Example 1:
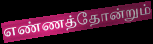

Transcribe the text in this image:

எண்ணத்தோன்றும்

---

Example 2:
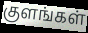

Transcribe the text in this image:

குளங்கள்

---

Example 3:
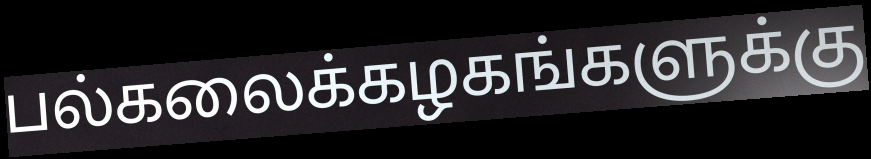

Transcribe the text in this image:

பல்கலைக்கழகங்களுக்கு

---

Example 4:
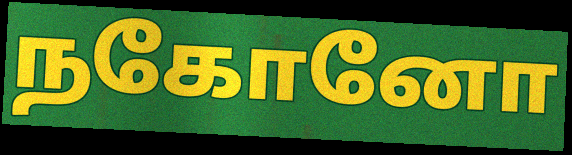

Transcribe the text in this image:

நகோனோ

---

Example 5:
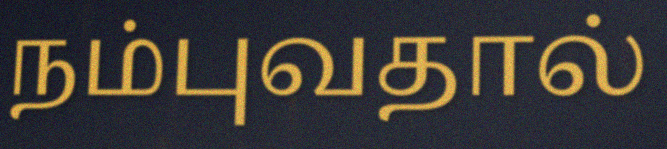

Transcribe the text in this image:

நம்புவதால்